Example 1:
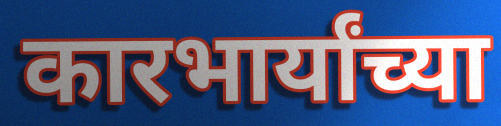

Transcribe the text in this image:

कारभार्यांच्या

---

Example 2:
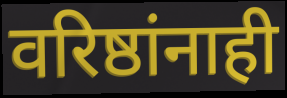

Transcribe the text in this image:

वरिष्ठांनाही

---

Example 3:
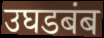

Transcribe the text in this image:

उघडबंब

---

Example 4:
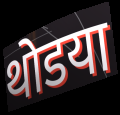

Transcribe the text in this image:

थोडया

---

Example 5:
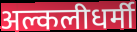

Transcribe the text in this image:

अल्कलीधर्मी